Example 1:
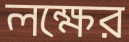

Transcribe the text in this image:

লক্ষের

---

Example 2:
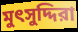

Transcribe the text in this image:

মুৎসুদ্দিরা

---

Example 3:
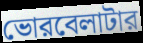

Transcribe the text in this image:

ভোরবেলাটার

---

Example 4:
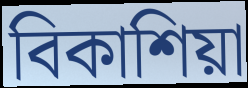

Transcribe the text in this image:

বিকাশিয়া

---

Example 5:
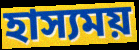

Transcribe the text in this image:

হাস্যময়